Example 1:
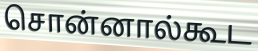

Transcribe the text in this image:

சொன்னால்கூட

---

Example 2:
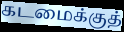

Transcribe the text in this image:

கடமைக்குத்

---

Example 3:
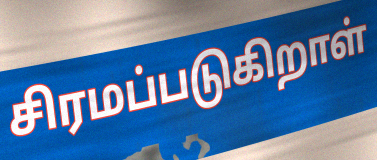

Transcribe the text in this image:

சிரமப்படுகிறாள்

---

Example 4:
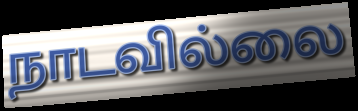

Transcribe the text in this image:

நாடவில்லை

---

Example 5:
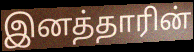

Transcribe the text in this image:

இனத்தாரின்